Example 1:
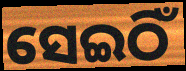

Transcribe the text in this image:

ସେଇଠିଁ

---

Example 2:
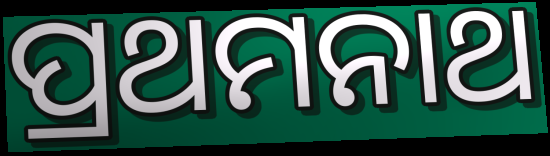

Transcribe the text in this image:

ପ୍ରଥମନାଥ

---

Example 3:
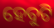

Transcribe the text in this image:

ହେବୁଟି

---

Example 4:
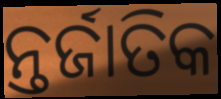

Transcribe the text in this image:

ନ୍ତର୍ଜାତିକ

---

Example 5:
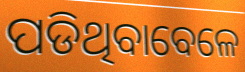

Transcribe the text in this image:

ପଡିଥିବାବେଳେ